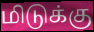
மிடுக்கு